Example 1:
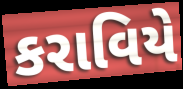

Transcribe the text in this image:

કરાવિયે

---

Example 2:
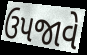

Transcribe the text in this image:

ઉપજાવે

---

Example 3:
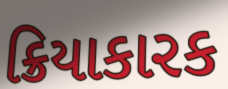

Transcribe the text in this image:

ક્રિયાકારક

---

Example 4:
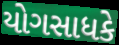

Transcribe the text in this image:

યોગસાધકે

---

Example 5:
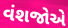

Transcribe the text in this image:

વંશજોએ